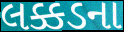
લક્કડના